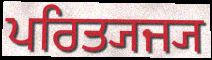
ਪਰਿਤ੍ਯਜ੍ਯ